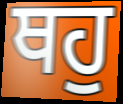
ਥਹੁ